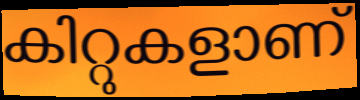
കിറ്റുകളാണ്